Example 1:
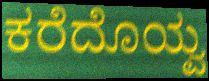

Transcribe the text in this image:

ಕರೆದೊಯ್ವ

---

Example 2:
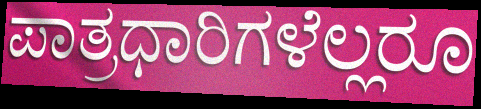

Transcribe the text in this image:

ಪಾತ್ರಧಾರಿಗಳೆಲ್ಲರೂ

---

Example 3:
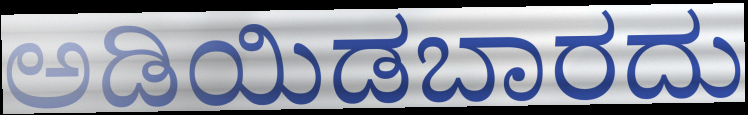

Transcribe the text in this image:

ಅಡಿಯಿಡಬಾರದು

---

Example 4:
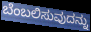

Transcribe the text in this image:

ಬೆಂಬಲಿಸುವುದನ್ನು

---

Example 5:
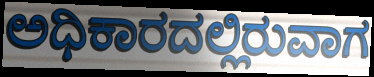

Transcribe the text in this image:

ಅಧಿಕಾರದಲ್ಲಿರುವಾಗ